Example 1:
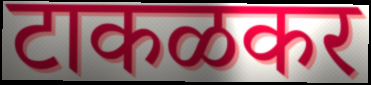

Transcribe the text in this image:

टाकळकर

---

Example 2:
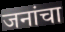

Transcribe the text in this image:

जनांचा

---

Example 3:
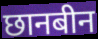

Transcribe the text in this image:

छानबीन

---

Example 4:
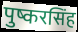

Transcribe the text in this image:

पुष्करसिंह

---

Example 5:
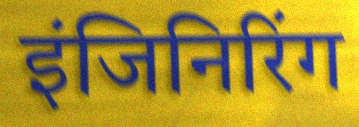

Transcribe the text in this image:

इंजिनिरिंग